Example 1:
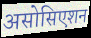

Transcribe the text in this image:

असोसिएशन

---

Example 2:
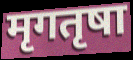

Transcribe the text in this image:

मृगतृषा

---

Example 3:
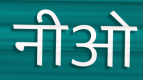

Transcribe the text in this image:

नीओ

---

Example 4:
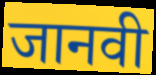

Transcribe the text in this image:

जानवी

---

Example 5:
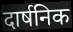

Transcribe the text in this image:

दार्षनिक